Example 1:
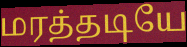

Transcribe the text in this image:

மரத்தடியே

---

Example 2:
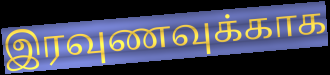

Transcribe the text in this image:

இரவுணவுக்காக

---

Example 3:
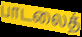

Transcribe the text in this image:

பாடலைத்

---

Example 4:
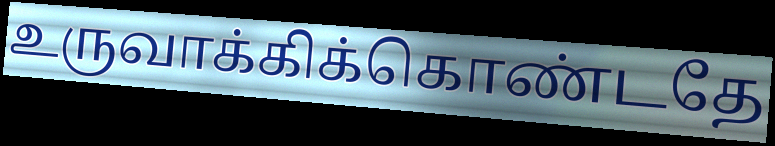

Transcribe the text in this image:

உருவாக்கிக்கொண்டதே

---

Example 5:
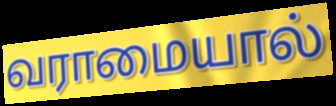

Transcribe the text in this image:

வராமையால்